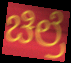
ಚಿಲ್ರೆ